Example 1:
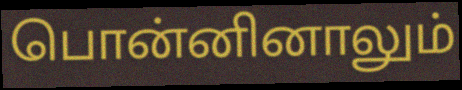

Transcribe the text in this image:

பொன்னினாலும்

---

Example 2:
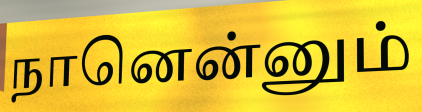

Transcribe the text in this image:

நானென்னும்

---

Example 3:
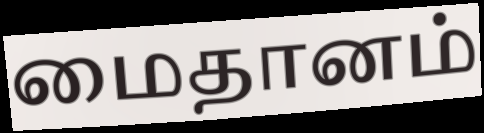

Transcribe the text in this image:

மைதானம்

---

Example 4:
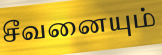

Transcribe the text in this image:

சீவனையும்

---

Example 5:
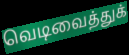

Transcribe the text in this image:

வெடிவைத்துக்